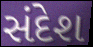
સંદેશ